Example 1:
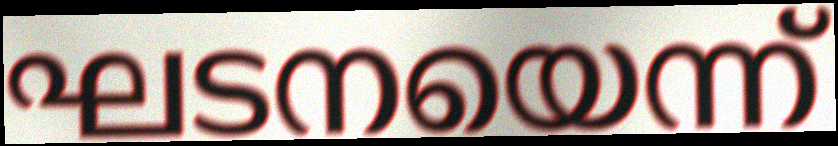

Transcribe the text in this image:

ഘടനയെന്ന്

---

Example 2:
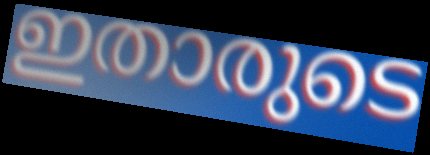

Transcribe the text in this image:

ഇതാരുടെ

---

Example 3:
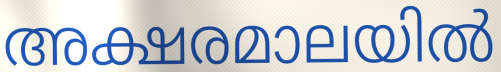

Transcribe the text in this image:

അക്ഷരമാലയിൽ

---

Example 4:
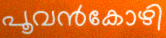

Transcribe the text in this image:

പൂവൻകോഴി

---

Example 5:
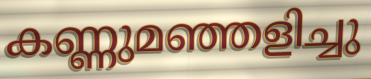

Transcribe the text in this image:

കണ്ണുമഞ്ഞളിച്ചു